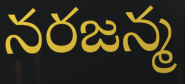
నరజన్మ